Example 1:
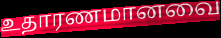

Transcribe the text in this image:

உதாரணமானவை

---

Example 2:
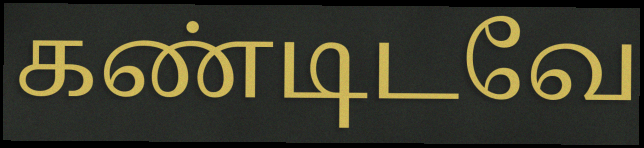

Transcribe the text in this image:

கண்டிடவே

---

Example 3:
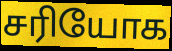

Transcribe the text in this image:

சரியோக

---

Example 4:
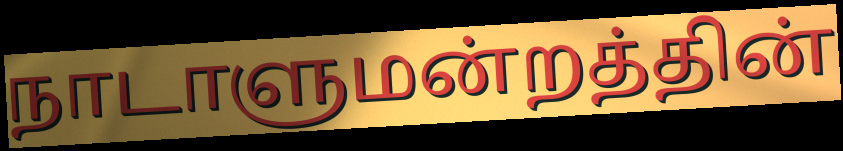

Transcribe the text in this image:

நாடாளுமன்றத்தின்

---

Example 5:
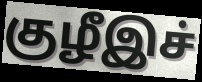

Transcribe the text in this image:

குழீஇச்